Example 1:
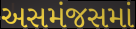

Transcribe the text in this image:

અસમંજસમાં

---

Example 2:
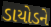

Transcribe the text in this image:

ડાયોડને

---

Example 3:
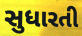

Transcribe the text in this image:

સુધારતી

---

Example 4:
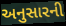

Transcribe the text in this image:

અનુસારની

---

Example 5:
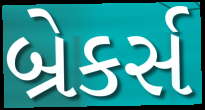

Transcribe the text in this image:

બ્રેકર્સ